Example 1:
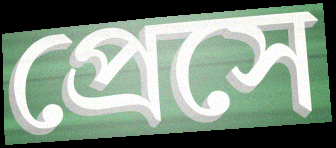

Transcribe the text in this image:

প্রেসে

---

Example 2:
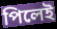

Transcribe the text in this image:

পিলেই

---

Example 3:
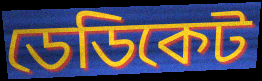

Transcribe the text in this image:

ডেডিকেট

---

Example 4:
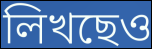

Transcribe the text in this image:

লিখছেও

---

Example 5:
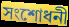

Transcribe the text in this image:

সংশোধনী